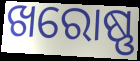
ଖରୋଷ୍ଣ